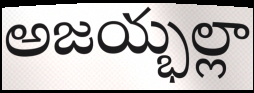
అజయ్భల్లా